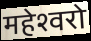
महेश्वरो